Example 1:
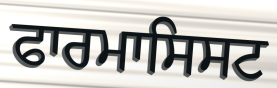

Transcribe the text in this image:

ਫਾਰਮਾਸਿਸਟ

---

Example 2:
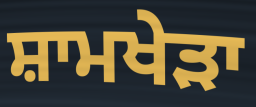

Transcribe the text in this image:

ਸ਼ਾਮਖੇੜਾ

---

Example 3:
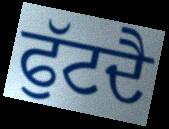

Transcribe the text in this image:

ਫੁੱਟਦੈ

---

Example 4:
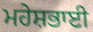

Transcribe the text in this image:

ਮਹੇਸ਼ਭਾਈ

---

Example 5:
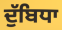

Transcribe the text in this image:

ਦੁੱਬਿਧਾ